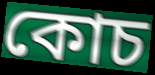
কোচ